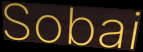
Sobai